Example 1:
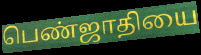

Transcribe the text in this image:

பெண்ஜாதியை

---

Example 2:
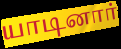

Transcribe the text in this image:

யாடினார்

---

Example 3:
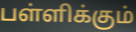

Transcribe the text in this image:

பள்ளிக்கும்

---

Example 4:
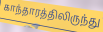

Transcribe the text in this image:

காந்தாரத்திலிருந்து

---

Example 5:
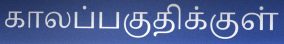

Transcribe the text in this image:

காலப்பகுதிக்குள்